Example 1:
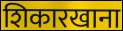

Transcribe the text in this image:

शिकारखाना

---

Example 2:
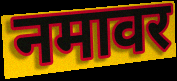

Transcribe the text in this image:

नमावर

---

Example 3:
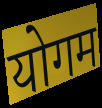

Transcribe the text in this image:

योगम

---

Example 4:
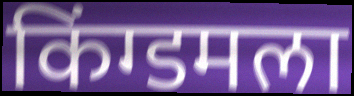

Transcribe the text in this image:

किंग्डमला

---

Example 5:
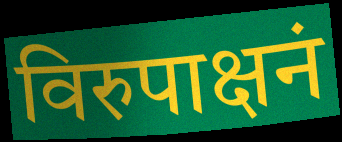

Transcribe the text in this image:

विरुपाक्षनं